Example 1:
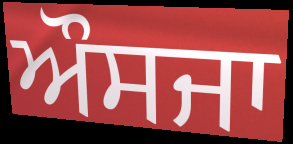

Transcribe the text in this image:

ਔਸਜਾ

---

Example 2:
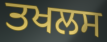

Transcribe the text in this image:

ਤਖਲਸ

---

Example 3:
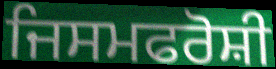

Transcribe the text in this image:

ਜਿਸਮਫਰੋਸ਼ੀ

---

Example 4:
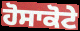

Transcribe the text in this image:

ਹੋਸਾਕੋਟੇ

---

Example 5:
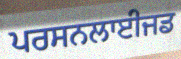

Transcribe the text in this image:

ਪਰਸਨਲਾਈਜਡ